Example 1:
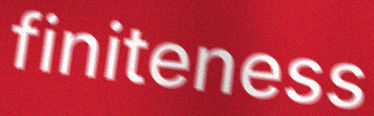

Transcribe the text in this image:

finiteness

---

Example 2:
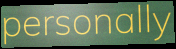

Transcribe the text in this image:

personally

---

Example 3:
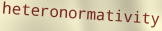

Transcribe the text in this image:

heteronormativity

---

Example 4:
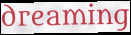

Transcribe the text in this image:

dreaming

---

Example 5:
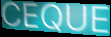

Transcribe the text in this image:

CEQUE